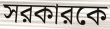
সরকারকে